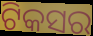
ଟିକସର